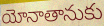
యోనాతానుకు